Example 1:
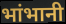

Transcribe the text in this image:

भांभानी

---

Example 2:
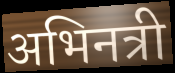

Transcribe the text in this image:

अभिनत्री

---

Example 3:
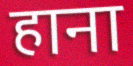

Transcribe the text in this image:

हाना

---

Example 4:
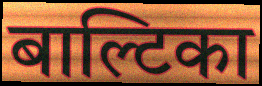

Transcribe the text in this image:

बाल्टिका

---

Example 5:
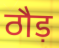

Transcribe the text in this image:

ठौड़